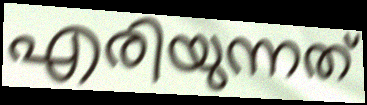
എരിയുന്നത്